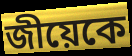
জীয়েকে